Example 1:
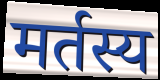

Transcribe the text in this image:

मर्तस्य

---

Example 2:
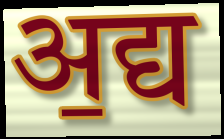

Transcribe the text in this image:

अ॒द्य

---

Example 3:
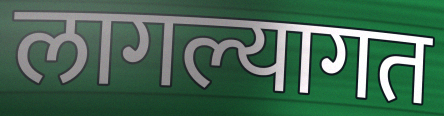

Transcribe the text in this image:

लागल्यागत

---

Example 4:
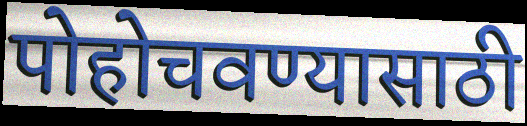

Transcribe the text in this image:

पोहोचवण्यासाठी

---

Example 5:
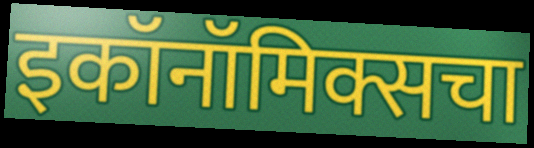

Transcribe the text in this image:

इकॉनॉमिक्सचा